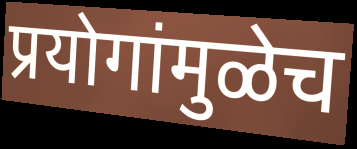
प्रयोगांमुळेच